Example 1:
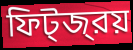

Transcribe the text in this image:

ফিট্‌জ্‌রয়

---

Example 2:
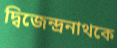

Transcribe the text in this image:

দ্বিজেন্দ্রনাথকে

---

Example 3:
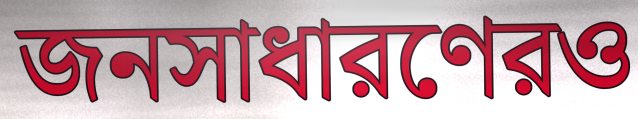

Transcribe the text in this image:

জনসাধারণেরও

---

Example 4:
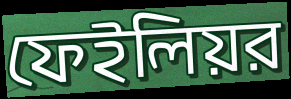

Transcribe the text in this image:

ফেইলিয়র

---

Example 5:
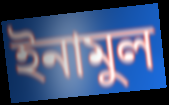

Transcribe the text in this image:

ইনামুল